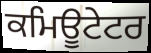
ਕਮਿਊਟੇਟਰ